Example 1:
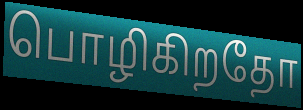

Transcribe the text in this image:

பொழிகிறதோ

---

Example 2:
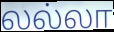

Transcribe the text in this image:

லல்லா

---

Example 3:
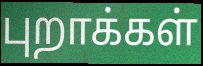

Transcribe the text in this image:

புறாக்கள்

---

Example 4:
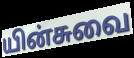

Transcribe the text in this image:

யின்சுவை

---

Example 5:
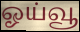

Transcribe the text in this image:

ஓய்வூ